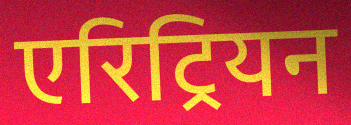
एरिट्रियन